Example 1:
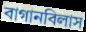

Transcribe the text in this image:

বাগানবিলাস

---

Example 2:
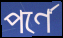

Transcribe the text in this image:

পর্ণে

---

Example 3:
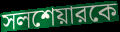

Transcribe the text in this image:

সলশেয়ারকে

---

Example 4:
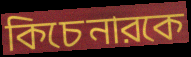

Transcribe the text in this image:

কিচেনারকে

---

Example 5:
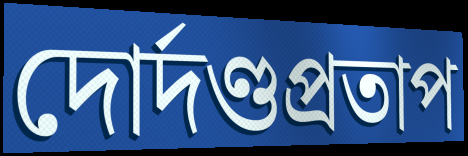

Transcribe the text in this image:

দোর্দণ্ডপ্রতাপ